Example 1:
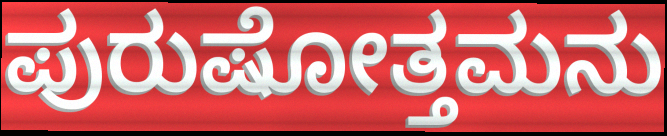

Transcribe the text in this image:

ಪುರುಷೋತ್ತಮನು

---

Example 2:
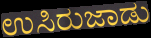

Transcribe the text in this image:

ಉಸಿರುಜಾಡು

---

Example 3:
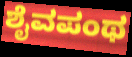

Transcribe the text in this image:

ಶೈವಪಂಥ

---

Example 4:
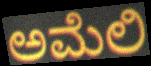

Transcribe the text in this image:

ಅಮೆಲಿ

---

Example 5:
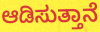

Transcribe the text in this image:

ಆಡಿಸುತ್ತಾನೆ